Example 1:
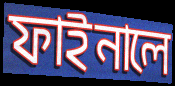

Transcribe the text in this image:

ফাইনালে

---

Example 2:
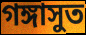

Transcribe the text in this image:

গঙ্গাসুত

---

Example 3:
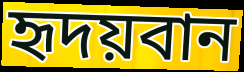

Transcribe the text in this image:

হৃদয়বান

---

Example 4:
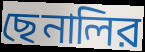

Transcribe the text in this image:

ছেনালির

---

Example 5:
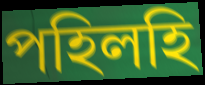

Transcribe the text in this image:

পহিলহি